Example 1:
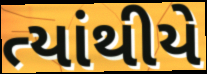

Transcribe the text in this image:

ત્યાંથીયે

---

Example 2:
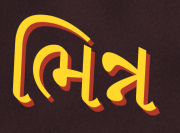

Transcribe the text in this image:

ભિન્ન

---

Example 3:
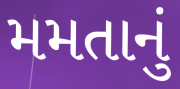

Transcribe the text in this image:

મમતાનું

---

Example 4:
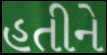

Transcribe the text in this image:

હતીને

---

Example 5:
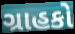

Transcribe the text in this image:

ગ્રાહકો